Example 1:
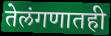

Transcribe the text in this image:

तेलंगणातही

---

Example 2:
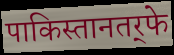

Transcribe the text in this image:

पाकिस्तानतर्फे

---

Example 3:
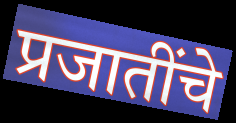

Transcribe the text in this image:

प्रजातींचे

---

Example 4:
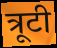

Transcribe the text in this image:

त्रूटी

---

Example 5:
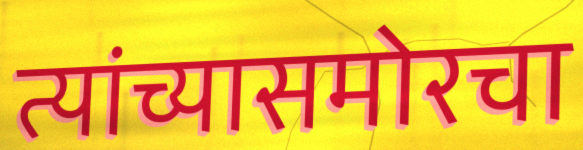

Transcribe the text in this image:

त्यांच्यासमोरचा